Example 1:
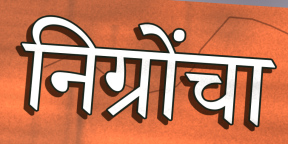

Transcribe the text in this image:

निग्रोंचा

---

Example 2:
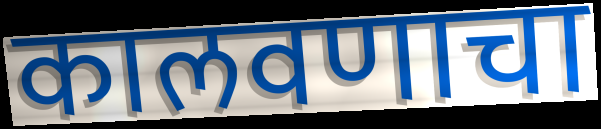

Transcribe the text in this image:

कालवणाचा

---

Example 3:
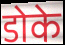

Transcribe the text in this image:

डोके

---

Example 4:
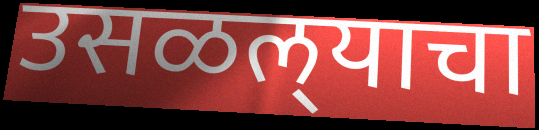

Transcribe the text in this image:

उसळल्याचा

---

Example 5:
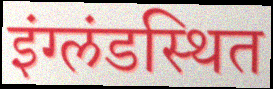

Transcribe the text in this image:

इंग्लंडस्थित